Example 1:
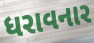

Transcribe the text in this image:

ધરાવનાર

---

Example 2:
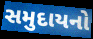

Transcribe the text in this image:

સમુદાયનો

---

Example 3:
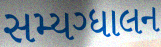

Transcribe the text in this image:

સમ્યગ્ધાલન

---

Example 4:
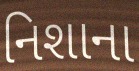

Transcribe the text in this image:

નિશાના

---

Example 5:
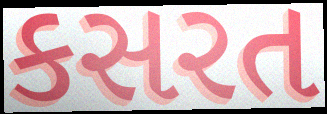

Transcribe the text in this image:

કસરત